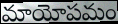
మాయోపమం